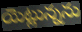
యెట్లున్నను